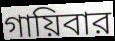
গায়িবার